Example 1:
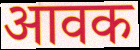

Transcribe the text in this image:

आवक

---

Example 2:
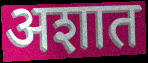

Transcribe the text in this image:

अशात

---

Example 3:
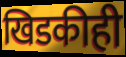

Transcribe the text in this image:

खिडकीही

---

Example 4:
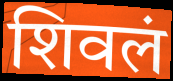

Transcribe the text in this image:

शिवलं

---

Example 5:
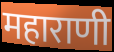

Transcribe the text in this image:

महाराणी